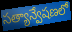
సత్యాన్వేషణలో